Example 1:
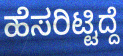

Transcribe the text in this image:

ಹೆಸರಿಟ್ಟಿದ್ದೆ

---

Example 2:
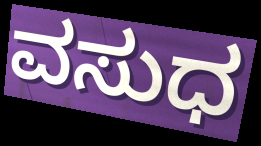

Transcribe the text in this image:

ವಸುಧ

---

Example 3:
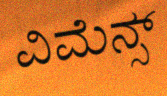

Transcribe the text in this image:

ವಿಮೆನ್ಸ್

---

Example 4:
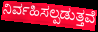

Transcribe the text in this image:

ನಿರ್ವಹಿಸಲ್ಪಡುತ್ತವೆ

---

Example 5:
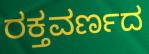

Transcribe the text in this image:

ರಕ್ತವರ್ಣದ